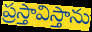
ప్రస్తావిస్తాను